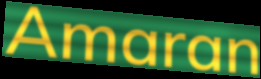
Amaran